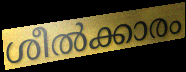
ശീൽക്കാരം